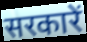
सरकारें